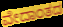
ವೇದಾಂತದ